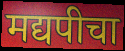
मद्यपीचा